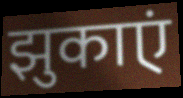
झुकाएं